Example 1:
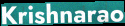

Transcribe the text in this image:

Krishnarao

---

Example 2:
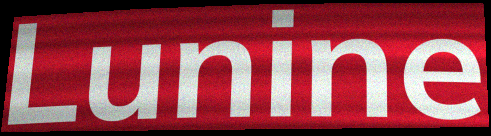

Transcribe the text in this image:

Lunine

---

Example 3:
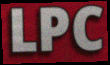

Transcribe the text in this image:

LPC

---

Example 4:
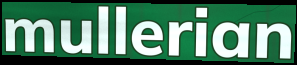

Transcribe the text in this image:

mullerian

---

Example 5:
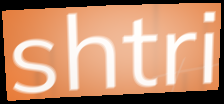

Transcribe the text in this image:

shtri